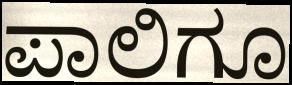
ಪಾಲಿಗೂ